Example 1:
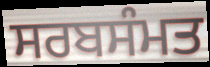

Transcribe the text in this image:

ਸਰਬਸੰਮਤ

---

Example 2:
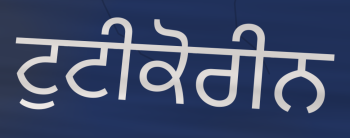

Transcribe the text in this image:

ਟੁਟੀਕੋਰੀਨ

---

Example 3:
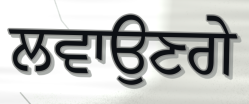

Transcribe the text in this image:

ਲਵਾਉਣਗੇ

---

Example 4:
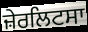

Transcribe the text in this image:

ਜ਼ੇਰਲਿਟਸਾ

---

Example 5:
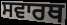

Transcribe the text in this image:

ਸਵਾਰਥ